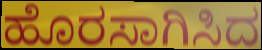
ಹೊರಸಾಗಿಸಿದ